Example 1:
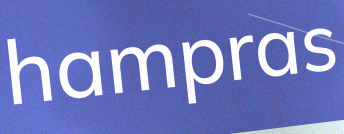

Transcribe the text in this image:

hampras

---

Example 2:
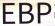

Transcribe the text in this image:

EBP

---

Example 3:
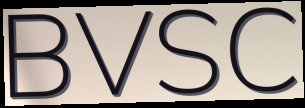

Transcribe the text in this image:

BVSC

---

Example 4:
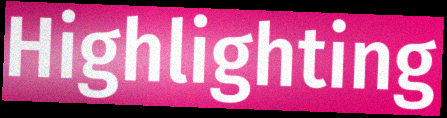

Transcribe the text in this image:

Highlighting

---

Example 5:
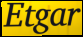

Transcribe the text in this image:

Etgar